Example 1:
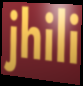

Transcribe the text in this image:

jhili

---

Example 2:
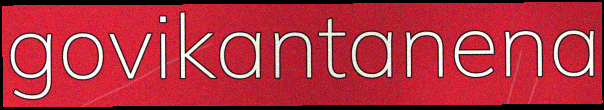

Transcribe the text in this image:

govikantanena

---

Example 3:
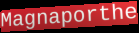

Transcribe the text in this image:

Magnaporthe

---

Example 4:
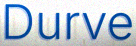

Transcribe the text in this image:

Durve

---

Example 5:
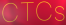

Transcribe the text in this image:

CTCs